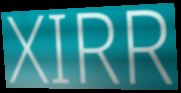
XIRR